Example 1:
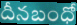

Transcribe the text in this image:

దీనబంధో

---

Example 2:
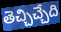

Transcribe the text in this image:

తెచ్చిచ్చేది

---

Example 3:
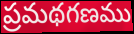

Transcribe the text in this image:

ప్రమథగణము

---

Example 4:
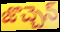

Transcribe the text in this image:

జొచ్చెన్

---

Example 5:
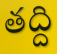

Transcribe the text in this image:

తద్ది